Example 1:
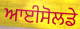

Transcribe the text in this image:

ਆਈਸੋਲਡੇ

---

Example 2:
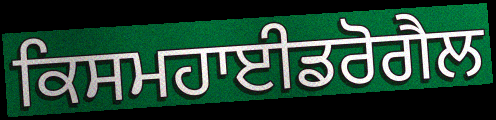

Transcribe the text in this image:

ਕਿਸਮਹਾਈਡਰੋਗੈਲ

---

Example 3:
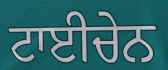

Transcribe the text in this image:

ਟਾਈਚੇਨ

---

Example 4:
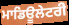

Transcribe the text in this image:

ਮਾਡਿਊਲੇਟਰੀ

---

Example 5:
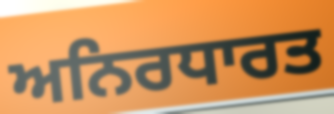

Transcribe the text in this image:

ਅਨਿਰਧਾਰਤ